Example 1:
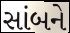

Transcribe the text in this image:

સાંબને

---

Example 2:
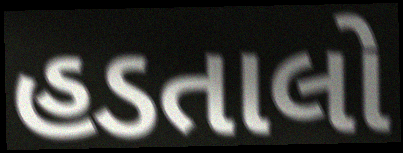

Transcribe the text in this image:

હડતાલો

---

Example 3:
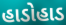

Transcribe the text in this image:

હાડોહાડ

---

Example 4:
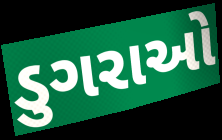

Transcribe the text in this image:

ડુગરાઓ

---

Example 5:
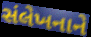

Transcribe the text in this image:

સંલેખનાને